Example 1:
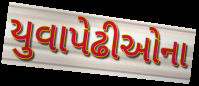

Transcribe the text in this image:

યુવાપેઢીઓના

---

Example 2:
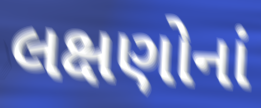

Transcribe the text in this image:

લક્ષણોનાં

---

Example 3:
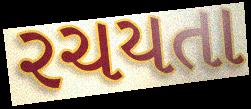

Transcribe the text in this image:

રચયતા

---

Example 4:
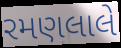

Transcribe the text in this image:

રમણલાલે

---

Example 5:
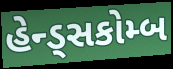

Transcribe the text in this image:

હેન્ડ્સકોમ્બ